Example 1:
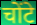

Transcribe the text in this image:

चोंटे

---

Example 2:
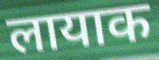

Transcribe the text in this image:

लायाक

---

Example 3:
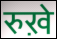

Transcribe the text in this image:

रुख़े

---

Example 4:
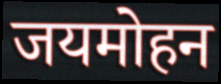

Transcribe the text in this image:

जयमोहन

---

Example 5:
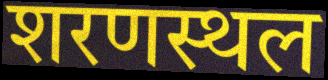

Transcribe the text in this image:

शरणस्थल